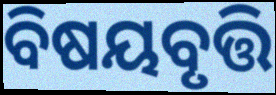
ବିଷୟବୃତ୍ତି